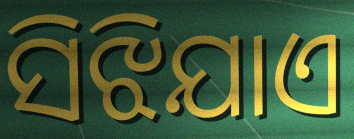
ସିଝିଯାଏ